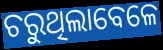
ଚରୁଥିଲାବେଳେ